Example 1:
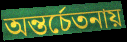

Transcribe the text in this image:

অন্তর্চেতনায়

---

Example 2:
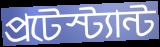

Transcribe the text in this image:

প্রটেস্ট্যান্ট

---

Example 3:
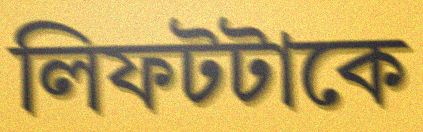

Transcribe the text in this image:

লিফটটাকে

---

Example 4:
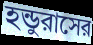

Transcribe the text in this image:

হন্ডুরাসের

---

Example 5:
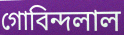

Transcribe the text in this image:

গোবিন্দলাল